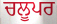
ਚਲੂਪਰ